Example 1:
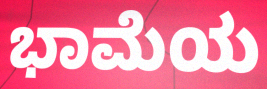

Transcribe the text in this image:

ಭಾಮೆಯ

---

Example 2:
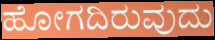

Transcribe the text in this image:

ಹೋಗದಿರುವುದು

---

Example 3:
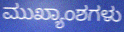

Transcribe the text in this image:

ಮುಖ್ಯಾಂಶಗಳು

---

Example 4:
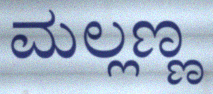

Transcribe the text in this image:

ಮಲ್ಲಣ್ಣ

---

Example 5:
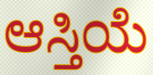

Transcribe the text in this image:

ಆಸ್ತಿಯೆ